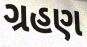
ગ્રહણ